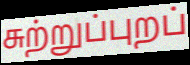
சுற்றுப்புறப்